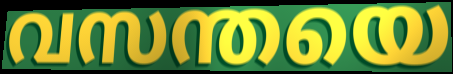
വസന്തയെ